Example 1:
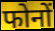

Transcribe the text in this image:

फोनों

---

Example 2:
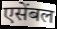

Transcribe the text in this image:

एसेंबल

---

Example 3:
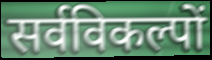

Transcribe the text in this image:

सर्वविकल्पों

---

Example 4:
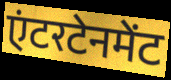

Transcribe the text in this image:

एंटरटेनमेंट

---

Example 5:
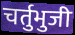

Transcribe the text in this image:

चर्तुभुजी